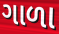
ગાળા